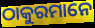
ଠାକୁରମାନେ